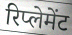
रिप्लेमेंट